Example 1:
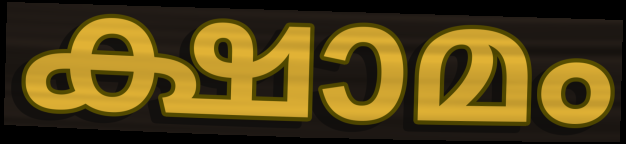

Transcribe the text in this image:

ക്ഷാമം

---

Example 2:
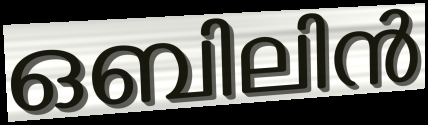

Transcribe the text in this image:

ഒബിലിൻ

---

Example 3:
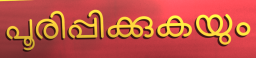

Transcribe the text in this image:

പൂരിപ്പിക്കുകയും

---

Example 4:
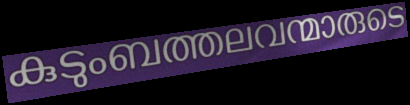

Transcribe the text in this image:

കുടുംബത്തലവന്മാരുടെ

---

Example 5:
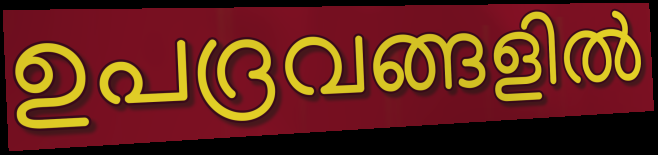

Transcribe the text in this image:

ഉപദ്രവങ്ങളിൽ